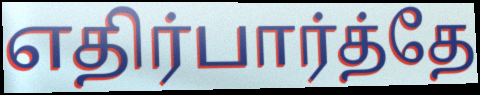
எதிர்பார்த்தே